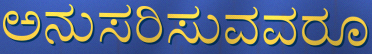
ಅನುಸರಿಸುವವರೂ